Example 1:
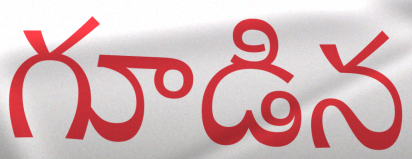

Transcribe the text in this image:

గూడిన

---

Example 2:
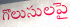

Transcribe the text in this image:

గొలుసులపై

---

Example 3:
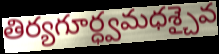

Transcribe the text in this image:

తిర్యగూర్ధ్వమధశ్చైవ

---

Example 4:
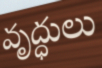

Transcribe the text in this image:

వృద్ధులు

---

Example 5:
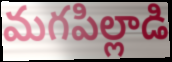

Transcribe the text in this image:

మగపిల్లాడి